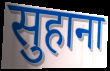
सुहाना